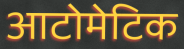
आटोमेटिक